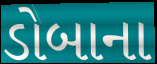
ડોબાના